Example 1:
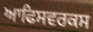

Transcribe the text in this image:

ਆਫਿਸਵਰਕਸ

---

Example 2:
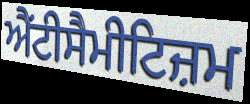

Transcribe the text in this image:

ਐਂਟੀਸੈਮੀਟਿਜ਼ਮ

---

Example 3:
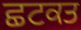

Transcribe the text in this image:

ਛਟਕਤ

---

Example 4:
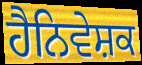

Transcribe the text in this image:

ਹੈਨਿਵੇਸ਼ਕ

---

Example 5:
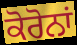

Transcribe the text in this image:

ਕੋਰੋਨਾਂ